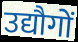
उद्यौगों